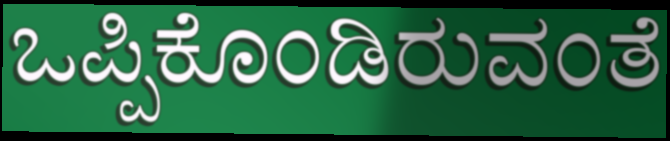
ಒಪ್ಪಿಕೊಂಡಿರುವಂತೆ